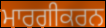
ਮਾਰਗੀਕਰਨ